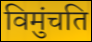
विमुंचति